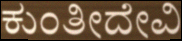
ಕುಂತೀದೇವಿ